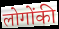
लोगोंकी